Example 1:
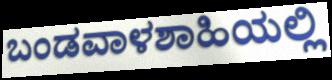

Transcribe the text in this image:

ಬಂಡವಾಳಶಾಹಿಯಲ್ಲಿ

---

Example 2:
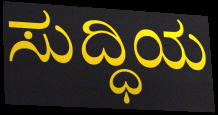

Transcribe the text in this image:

ಸುದ್ಧಿಯ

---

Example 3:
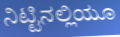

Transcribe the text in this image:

ನಿಟ್ಟಿನಲ್ಲಿಯೂ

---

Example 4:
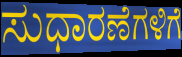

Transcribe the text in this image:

ಸುಧಾರಣೆಗಳಿಗೆ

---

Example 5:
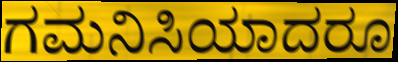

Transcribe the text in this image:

ಗಮನಿಸಿಯಾದರೂ